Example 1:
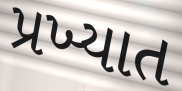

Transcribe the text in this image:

પ્રખ્યાત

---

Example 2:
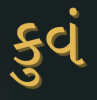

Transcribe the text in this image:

કુવં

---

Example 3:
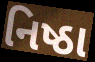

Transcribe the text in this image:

નિષ્ઠા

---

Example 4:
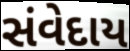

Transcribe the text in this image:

સંવેદાય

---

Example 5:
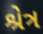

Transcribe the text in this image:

શ્રેત્ર